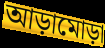
আড়ামোড়া